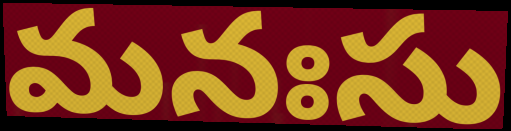
మనఃసు